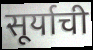
सूर्याची